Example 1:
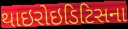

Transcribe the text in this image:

થાઇરોઇડિટિસના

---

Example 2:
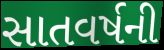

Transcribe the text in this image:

સાતવર્ષની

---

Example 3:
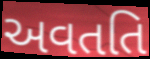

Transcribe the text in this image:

અવતતિ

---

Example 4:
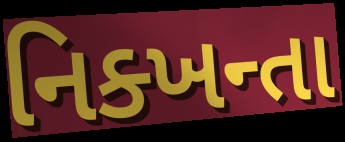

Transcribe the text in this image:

નિક્ખન્તા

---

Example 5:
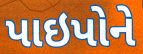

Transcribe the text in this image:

પાઇપોને